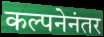
कल्पनेनंतर